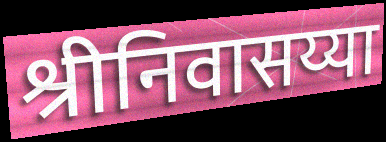
श्रीनिवासय्या